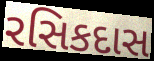
રસિકદાસ